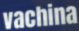
vachina